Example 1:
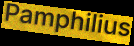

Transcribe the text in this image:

Pamphilius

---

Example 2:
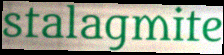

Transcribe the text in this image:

stalagmite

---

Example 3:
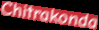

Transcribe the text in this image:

Chitrakonda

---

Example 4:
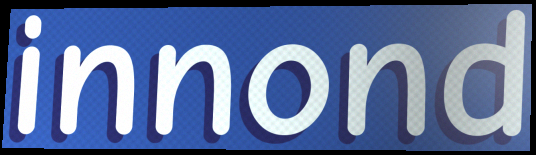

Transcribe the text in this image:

innond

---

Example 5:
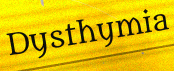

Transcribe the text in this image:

Dysthymia